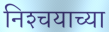
निश्चयाच्या